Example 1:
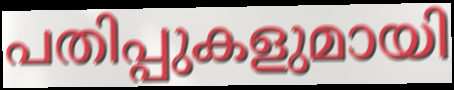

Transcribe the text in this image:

പതിപ്പുകളുമായി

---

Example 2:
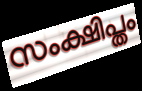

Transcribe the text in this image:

സംക്ഷിപ്തം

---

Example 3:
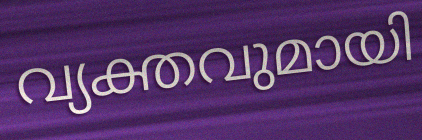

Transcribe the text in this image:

വ്യക്തവുമായി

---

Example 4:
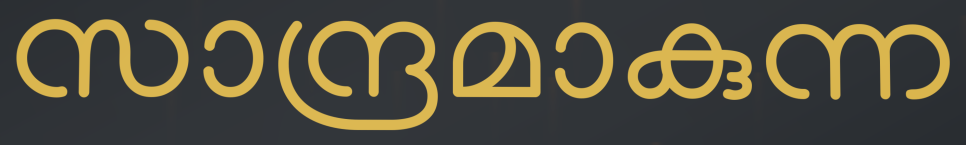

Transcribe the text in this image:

സാന്ദ്രമാകുന്ന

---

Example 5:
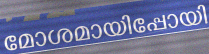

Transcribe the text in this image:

മോശമായിപ്പോയി